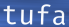
tufa